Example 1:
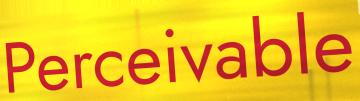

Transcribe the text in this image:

Perceivable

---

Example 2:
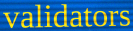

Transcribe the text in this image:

validators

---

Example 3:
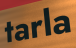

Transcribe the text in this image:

tarla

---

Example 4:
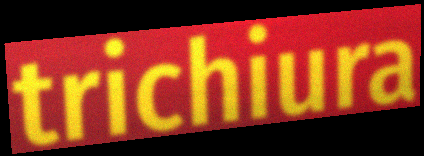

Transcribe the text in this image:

trichiura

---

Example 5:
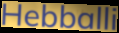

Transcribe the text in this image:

Hebballi